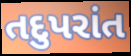
તદુપરાંત